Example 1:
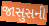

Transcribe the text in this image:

જાસુસની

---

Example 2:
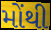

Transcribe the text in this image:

મોંથી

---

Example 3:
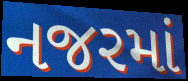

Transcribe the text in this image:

નજરમાં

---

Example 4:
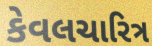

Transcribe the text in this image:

કેવલચારિત્ર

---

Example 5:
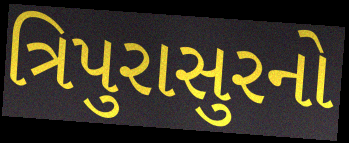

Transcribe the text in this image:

ત્રિપુરાસુરનો